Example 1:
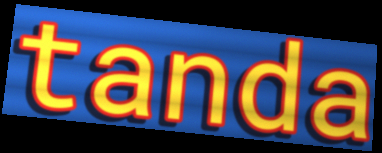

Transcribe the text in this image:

tanda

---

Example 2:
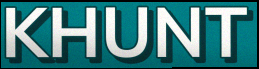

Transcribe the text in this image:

KHUNT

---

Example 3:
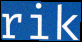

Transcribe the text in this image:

rik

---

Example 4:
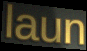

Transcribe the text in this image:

laun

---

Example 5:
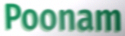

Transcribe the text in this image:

Poonam